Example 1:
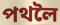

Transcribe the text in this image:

পথলৈ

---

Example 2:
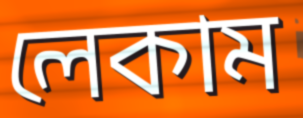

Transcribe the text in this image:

লেকাম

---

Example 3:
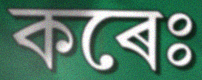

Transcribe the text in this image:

কৰেঃ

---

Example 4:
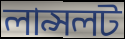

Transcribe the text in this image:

লান্সলট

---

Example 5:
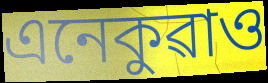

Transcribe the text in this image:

এনেকুৱাও